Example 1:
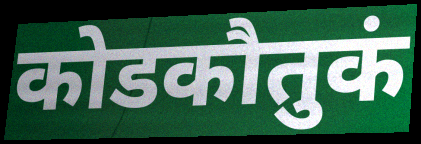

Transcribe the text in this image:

कोडकौतुकं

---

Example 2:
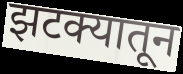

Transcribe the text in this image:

झटक्यातून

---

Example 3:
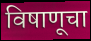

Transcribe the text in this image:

विषाणूचा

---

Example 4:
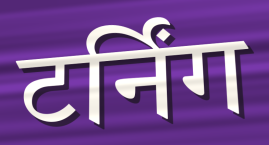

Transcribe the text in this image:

टर्निंग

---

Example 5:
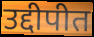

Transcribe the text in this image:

उद्दीपीत